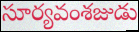
సూర్యవంశజుడు